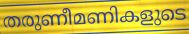
തരുണീമണികളുടെ